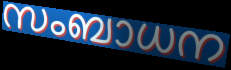
സംബാധന